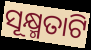
ସୂକ୍ଷ୍ମତାଟି